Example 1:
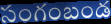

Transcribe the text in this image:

సంగంబండ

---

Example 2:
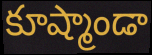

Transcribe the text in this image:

కూష్మాండా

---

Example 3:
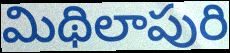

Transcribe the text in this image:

మిథిలాపురి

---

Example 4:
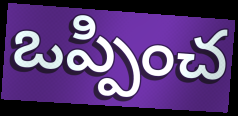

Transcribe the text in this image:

ఒప్పించ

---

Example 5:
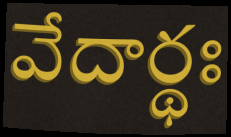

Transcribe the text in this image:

వేదార్థః